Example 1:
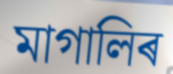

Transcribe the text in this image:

মাগালিৰ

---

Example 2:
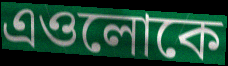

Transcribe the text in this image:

এওলোকে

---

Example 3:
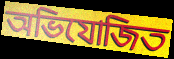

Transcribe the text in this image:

অভিযোজিত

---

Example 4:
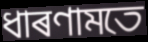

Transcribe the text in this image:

ধাৰণামতে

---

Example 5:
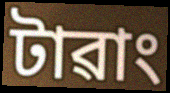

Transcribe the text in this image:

টাৱাং